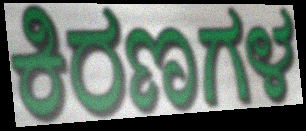
ಕಿರಣಗಳ